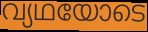
വ്യഥയോടെ